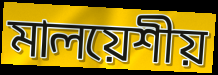
মালয়েশীয়